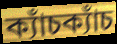
ক্যাঁচক্যাঁচ